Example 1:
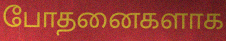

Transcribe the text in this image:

போதனைகளாக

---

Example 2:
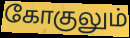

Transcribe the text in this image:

கோகுலும்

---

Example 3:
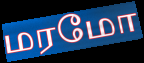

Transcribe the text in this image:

மரமோ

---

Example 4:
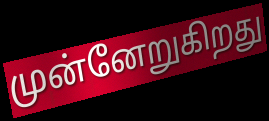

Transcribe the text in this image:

முன்னேறுகிறது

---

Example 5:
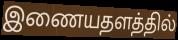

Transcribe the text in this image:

இணையதளத்தில்